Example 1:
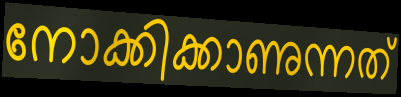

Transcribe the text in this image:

നോക്കിക്കാണുന്നത്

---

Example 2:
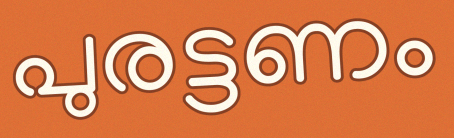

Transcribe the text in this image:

പുരട്ടണം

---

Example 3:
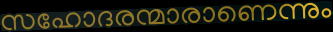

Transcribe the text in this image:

സഹോദരന്മാരാണെന്നും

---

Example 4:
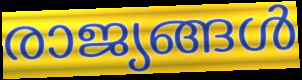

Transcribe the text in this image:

രാജ്യങ്ങൾ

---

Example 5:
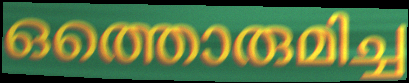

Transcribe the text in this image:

ഒത്തൊരുമിച്ച